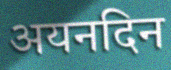
अयनदिन